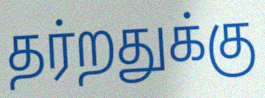
தர்றதுக்கு